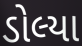
ડોલ્યા